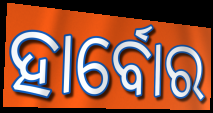
ହାର୍ବୋର